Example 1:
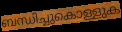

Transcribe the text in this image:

ബന്ധിച്ചുകൊള്ളുക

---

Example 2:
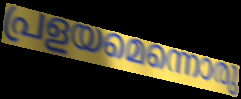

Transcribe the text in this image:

പ്രളയമെന്നൊരു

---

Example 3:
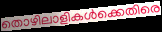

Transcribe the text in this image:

തൊഴിലാളികൾക്കെതിരെ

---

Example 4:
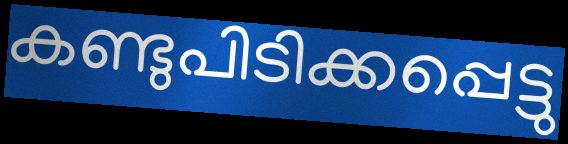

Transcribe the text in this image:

കണ്ടുപിടിക്കപ്പെട്ടു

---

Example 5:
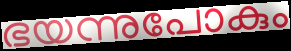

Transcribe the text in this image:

ഭയന്നുപോകും